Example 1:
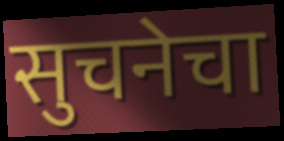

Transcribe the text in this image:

सुचनेचा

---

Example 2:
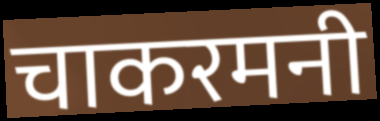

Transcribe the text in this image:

चाकरमनी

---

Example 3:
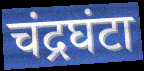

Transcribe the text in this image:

चंद्रघंटा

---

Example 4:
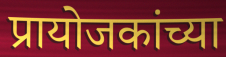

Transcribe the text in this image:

प्रायोजकांच्या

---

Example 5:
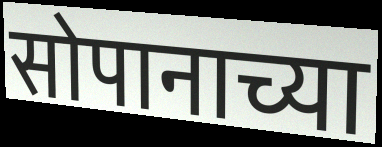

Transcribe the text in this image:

सोपानाच्या